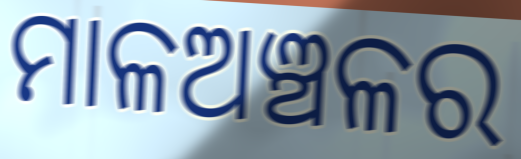
ମାଳଅଞ୍ଚଳର